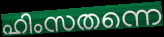
ഹിംസതന്നെ